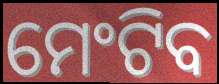
ମେଂଟିବ